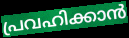
പ്രവഹിക്കാൻ